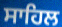
ਸਾਹਿਲ